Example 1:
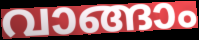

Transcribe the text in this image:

വാങ്ങാം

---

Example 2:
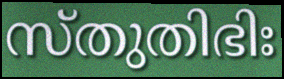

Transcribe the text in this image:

സ്തുതിഭിഃ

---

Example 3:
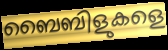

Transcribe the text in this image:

ബൈബിളുകളെ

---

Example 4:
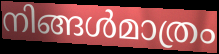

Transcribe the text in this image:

നിങ്ങൾമാത്രം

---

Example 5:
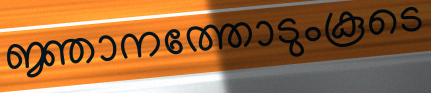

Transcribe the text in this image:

ജ്ഞാനത്തോടുംകൂടെ